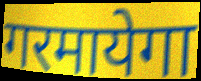
गरमायेगा